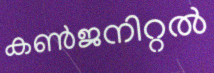
കൺജനിറ്റൽ